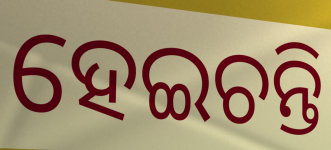
ହେଇଚନ୍ତି